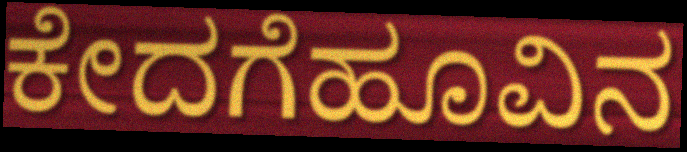
ಕೇದಗೆಹೂವಿನ